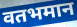
वतभमान